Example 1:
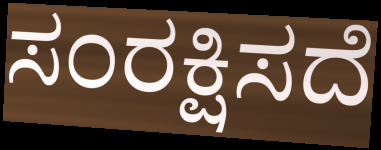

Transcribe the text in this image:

ಸಂರಕ್ಷಿಸದೆ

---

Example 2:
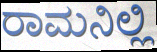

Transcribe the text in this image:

ರಾಮನಿಲ್ಲಿ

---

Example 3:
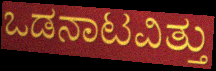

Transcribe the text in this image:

ಒಡನಾಟವಿತ್ತು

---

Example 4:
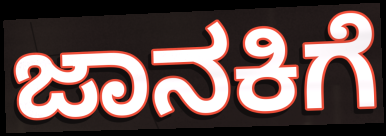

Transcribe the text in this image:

ಜಾನಕಿಗೆ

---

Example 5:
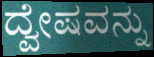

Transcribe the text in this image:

ದ್ವೇಷವನ್ನು